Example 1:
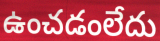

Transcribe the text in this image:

ఉంచడంలేదు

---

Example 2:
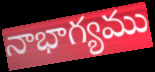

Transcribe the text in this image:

నాభాగ్యము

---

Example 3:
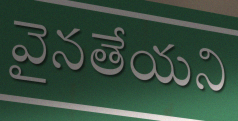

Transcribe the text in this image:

వైనతేయని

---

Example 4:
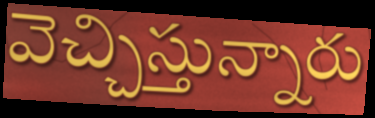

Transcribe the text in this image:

వెచ్చిస్తున్నారు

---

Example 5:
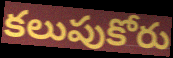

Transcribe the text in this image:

కలుపుకోరు